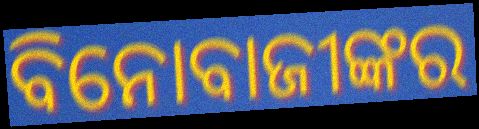
ବିନୋବାଜୀଙ୍କର